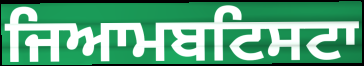
ਜਿਆਮਬਟਿਸਟਾ